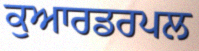
ਕੁਆਰਡਰਪਲ